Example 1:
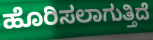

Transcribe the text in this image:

ಹೊರಿಸಲಾಗುತ್ತಿದೆ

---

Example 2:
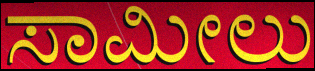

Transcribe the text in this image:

ಸಾಮೀಲು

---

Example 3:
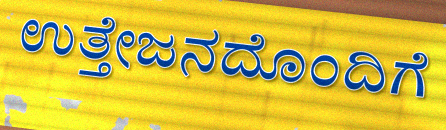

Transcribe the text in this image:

ಉತ್ತೇಜನದೊಂದಿಗೆ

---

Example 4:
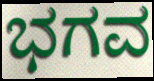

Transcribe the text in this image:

ಭಗವ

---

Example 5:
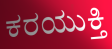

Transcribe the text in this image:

ಕರಯುಕ್ತಿ